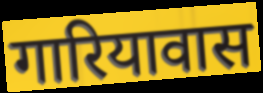
गारियावास